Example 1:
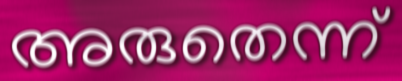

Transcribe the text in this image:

അരുതെന്ന്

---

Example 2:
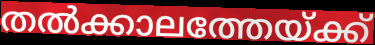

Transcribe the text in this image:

തൽക്കാലത്തേയ്ക്ക്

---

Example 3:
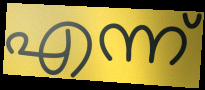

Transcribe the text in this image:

എന്ന്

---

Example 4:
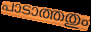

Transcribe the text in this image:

പാടാത്തതും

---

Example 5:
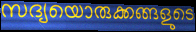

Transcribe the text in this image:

സദ്യയൊരുക്കങ്ങളുടെ